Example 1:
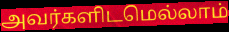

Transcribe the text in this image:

அவர்களிடமெல்லாம்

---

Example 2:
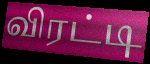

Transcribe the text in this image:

விரட்டி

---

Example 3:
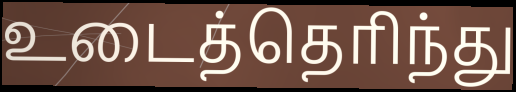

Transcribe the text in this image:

உடைத்தெரிந்து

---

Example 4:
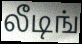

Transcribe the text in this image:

லீடிங்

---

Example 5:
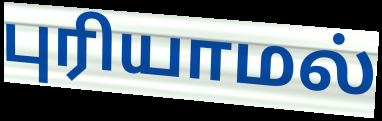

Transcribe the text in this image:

புரியாமல்